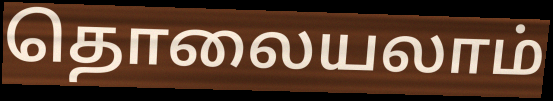
தொலையலாம்